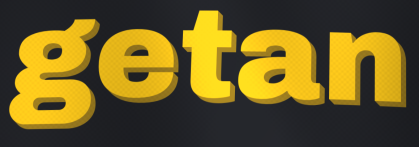
getan